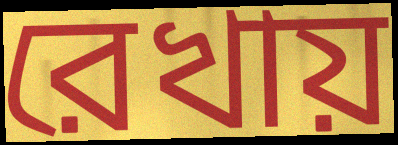
রেখায়